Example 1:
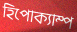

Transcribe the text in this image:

হিপোক্যাম্প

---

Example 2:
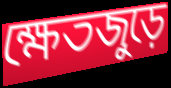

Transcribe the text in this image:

ক্ষেতজুড়ে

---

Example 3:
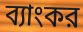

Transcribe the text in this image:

ব্যাংকর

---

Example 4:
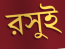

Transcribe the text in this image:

রসুই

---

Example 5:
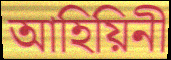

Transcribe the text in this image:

আহিয়িনী